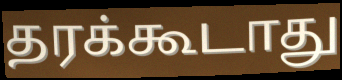
தரக்கூடாது